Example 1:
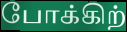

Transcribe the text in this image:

போக்கிற்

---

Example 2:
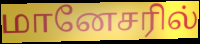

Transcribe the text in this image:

மானேசரில்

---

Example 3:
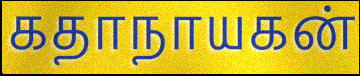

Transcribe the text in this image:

கதாநாயகன்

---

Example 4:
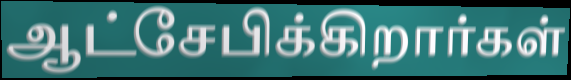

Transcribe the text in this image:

ஆட்சேபிக்கிறார்கள்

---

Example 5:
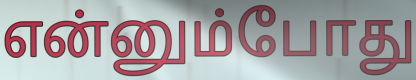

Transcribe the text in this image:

என்னும்போது